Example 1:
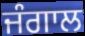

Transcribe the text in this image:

ਜੰਗਾਲ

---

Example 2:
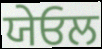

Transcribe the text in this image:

ਯੇਓਲ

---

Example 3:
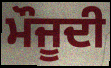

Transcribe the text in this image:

ਮੌਜੂਦੀ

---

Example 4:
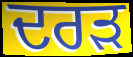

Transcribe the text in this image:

ਦਰੜ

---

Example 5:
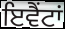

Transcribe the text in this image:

ਇਵੈਂਟਾਂ